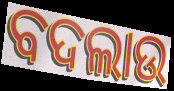
ବଦଲାଉ